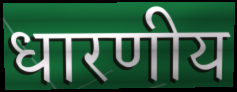
धारणीय